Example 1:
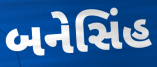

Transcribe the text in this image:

બનેસિંહ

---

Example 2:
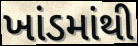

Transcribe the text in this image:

ખાંડમાંથી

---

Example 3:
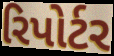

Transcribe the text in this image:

રિપોર્ટર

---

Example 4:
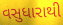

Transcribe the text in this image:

વસુધારાથી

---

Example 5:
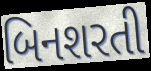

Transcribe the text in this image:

બિનશરતી